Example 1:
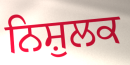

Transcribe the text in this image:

ਨਿਸ਼ੁਲਕ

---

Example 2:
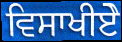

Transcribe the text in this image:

ਵਿਸਾਖੀਏੇ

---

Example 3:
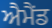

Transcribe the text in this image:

ਐਮੈਂਡ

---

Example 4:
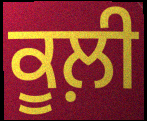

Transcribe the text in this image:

ਕੂਲ਼ੀ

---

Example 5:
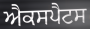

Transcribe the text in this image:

ਐਕਸਪੈਟਸ